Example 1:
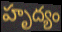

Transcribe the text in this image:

హృద్యం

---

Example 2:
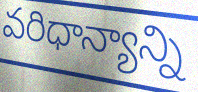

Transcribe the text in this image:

వరిధాన్యాన్ని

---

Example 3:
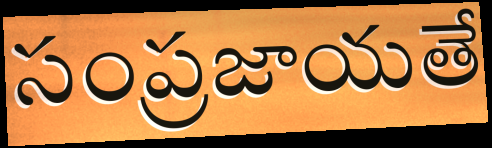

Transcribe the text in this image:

సంప్రజాయతే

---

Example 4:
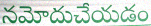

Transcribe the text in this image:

నమోదుచేయడం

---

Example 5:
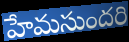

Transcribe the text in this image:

హేమసుందరి